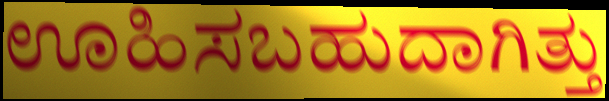
ಊಹಿಸಬಹುದಾಗಿತ್ತು